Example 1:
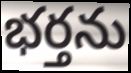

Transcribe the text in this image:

భర్తను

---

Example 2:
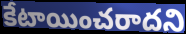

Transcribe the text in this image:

కేటాయించరాదని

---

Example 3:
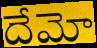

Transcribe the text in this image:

దేమో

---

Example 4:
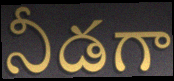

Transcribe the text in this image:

నీడగా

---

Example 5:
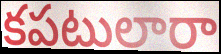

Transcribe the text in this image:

కపటులారా